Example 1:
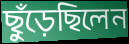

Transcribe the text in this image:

ছুঁড়েছিলেন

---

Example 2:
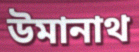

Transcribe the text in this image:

উমানাথ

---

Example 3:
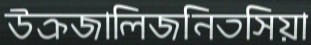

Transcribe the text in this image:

উক্রজালিজনিতসিয়া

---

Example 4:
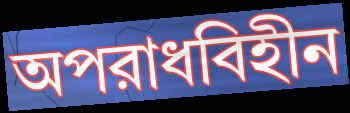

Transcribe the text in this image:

অপরাধবিহীন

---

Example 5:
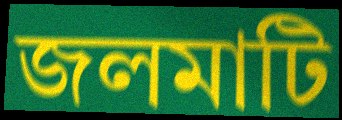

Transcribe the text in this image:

জলমাটি